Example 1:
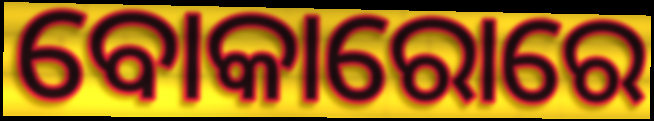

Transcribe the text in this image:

ବୋକାରୋରେ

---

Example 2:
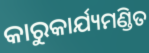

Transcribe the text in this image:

କାରୁକାର୍ଯ୍ୟମଣ୍ଡିତ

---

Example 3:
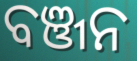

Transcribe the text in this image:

ବଞ୍ଜନ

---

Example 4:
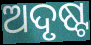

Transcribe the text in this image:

ଅଦୃଷ୍ଟ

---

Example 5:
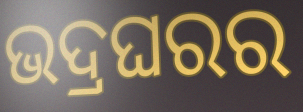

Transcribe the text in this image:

ଭଦ୍ରଘରର